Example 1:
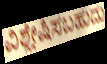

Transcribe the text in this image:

ವಿಶ್ಲೇಷಿಸಬಹುದು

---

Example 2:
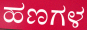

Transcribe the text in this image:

ಹಣಗಳ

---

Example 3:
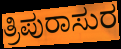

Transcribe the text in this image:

ತ್ರಿಪುರಾಸುರ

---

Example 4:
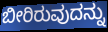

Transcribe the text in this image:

ಬೀರಿರುವುದನ್ನು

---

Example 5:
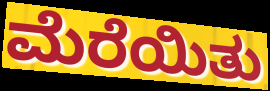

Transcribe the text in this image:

ಮೆರೆಯಿತು